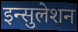
इन्सुलेशन